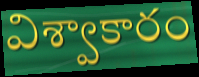
విశ్వాకారం